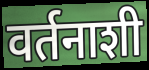
वर्तनाशी